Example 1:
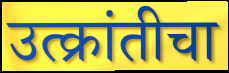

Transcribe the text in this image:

उत्क्रांतीचा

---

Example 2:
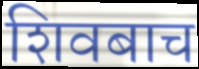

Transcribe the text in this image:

शिवबाच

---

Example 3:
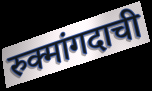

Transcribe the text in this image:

रुक्मांगदाची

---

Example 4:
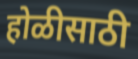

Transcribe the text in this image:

होळीसाठी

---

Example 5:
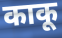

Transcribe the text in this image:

काकू